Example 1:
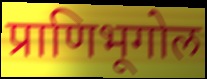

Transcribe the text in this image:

प्राणिभूगोल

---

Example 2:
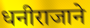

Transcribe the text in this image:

धनीराजाने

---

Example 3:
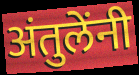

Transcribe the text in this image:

अंतुलेंनी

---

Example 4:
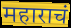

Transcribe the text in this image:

महाराचं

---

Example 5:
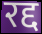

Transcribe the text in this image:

रद्द